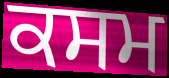
ਕਸਮ